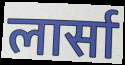
लार्सा